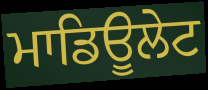
ਮਾਡਿਊਲੇਟ